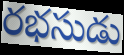
రభసుడు